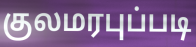
குலமரபுப்படி